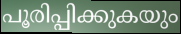
പൂരിപ്പിക്കുകയും